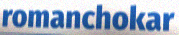
romanchokar